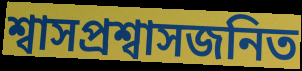
শ্বাসপ্রশ্বাসজনিত